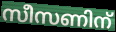
സീസണിന്